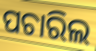
ପଚାରିଲ